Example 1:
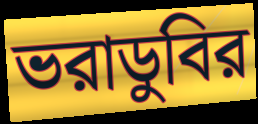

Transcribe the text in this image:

ভরাডুবির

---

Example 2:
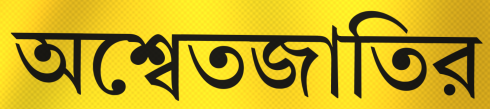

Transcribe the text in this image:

অশ্বেতজাতির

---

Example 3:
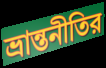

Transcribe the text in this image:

ভ্রান্তনীতির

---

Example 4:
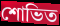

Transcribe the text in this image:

শোভিত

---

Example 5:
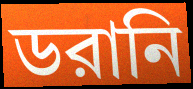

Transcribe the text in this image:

ডরানি